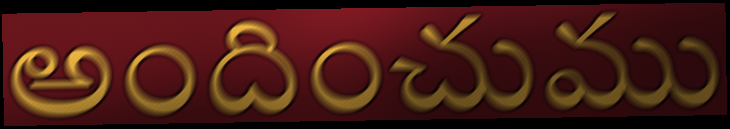
అందించుము